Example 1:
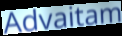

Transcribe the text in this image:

Advaitam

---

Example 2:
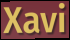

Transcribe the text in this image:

Xavi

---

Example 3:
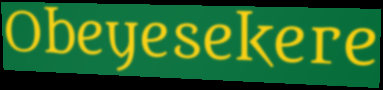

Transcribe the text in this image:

Obeyesekere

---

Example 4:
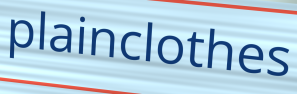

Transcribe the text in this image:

plainclothes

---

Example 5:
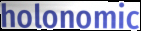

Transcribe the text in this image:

holonomic